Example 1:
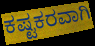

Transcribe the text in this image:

ಕಷ್ಟಕರವಾಗಿ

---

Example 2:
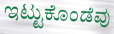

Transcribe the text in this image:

ಇಟ್ಟುಕೊಂಡೆವು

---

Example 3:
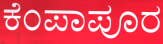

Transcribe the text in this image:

ಕೆಂಪಾಪೂರ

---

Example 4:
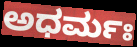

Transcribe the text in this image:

ಅಧರ್ಮಃ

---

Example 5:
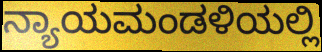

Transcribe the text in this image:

ನ್ಯಾಯಮಂಡಳಿಯಲ್ಲಿ